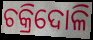
ଚକ୍ରିଦୋଳି